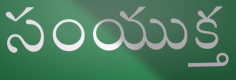
సంయుక్త